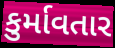
કુર્માવતાર